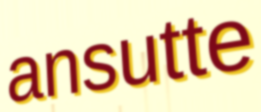
ansutte